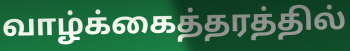
வாழ்க்கைத்தரத்தில்